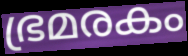
ഭ്രമരകം